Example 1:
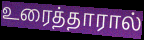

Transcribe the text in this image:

உரைத்தாரால்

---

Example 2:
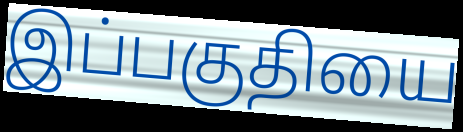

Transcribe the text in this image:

இப்பகுதியை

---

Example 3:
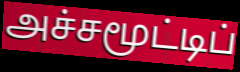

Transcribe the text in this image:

அச்சமூட்டிப்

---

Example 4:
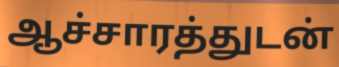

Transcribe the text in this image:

ஆச்சாரத்துடன்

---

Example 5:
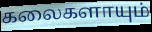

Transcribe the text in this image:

கலைகளாயும்